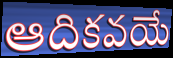
ఆదికవయే